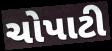
ચોપાટી